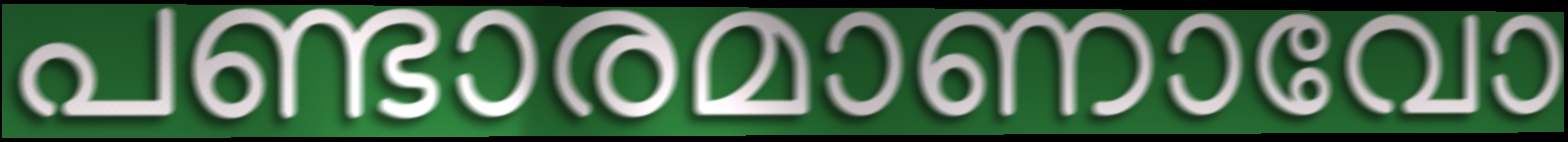
പണ്ടാരമാണാവോ